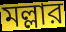
মল্লার